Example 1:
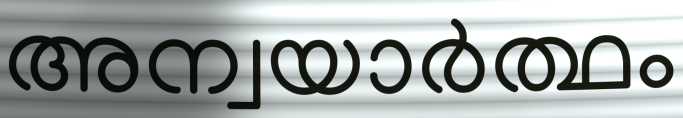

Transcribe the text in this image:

അന്വയാർത്ഥം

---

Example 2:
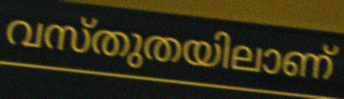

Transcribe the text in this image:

വസ്തുതയിലാണ്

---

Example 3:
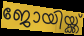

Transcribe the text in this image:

ജോയിയ്ക്ക്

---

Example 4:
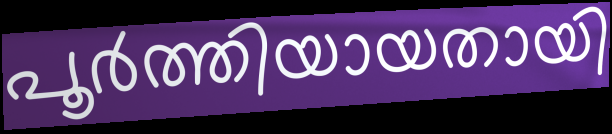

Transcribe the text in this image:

പൂർത്തിയായതായി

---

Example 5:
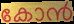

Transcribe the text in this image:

കോൻ